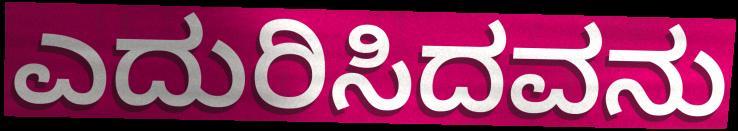
ಎದುರಿಸಿದವನು